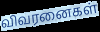
விவரனைகள்